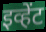
इव्हेंट